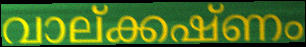
വാല്ക്കഷ്ണം